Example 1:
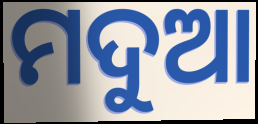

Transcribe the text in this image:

ମଦୁଆ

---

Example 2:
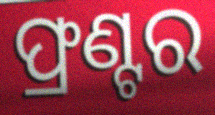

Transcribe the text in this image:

ଫ୍ରଣ୍ଟର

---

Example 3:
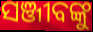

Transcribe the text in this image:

ସଞ୍ଜୀବଙ୍କୁ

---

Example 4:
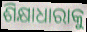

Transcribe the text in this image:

ଶିକ୍ଷାଧାରାକୁ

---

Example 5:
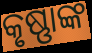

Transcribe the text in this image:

କୃଷ୍ଣାଙ୍କ